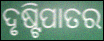
ଦୃଷ୍ଟିପାତର